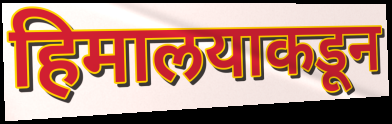
हिमालयाकडून